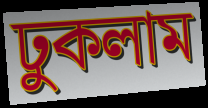
ঢুকলাম